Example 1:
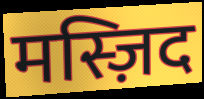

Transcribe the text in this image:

मस्ज़िद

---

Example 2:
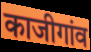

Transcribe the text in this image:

काजीगांव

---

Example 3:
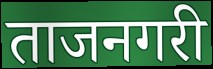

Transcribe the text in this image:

ताजनगरी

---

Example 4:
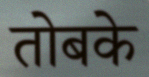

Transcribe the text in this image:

तोबके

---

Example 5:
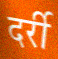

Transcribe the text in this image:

दर्री